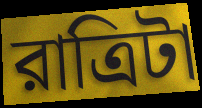
রাত্রিটা